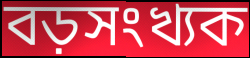
বড়সংখ্যক